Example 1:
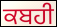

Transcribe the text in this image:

ਕਬਹੀ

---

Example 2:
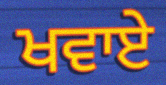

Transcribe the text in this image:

ਖਵਾਏ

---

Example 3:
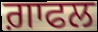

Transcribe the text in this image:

ਗ਼ਾਫਲ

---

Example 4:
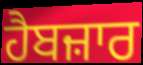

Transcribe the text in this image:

ਹੈਬਜ਼ਾਰ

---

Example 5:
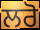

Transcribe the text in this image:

ਲਰੋ